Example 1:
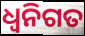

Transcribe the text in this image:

ଧ୍ୱନିଗତ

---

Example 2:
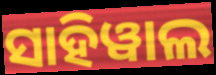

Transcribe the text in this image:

ସାହିୱାଲ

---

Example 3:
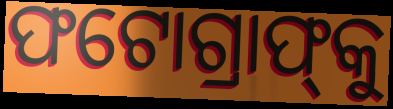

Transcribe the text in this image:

ଫଟୋଗ୍ରାଫ୍‌କୁ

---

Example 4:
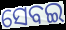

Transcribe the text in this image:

ସେବଇ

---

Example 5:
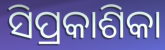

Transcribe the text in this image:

ସିପ୍ରକାଶିକା